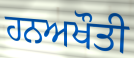
ਹਨਅਖੌਤੀ